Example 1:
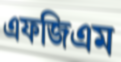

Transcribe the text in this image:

এফজিএম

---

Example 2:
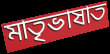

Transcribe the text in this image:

মাতৃভাষাত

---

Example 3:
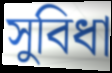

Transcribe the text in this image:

সুবিধা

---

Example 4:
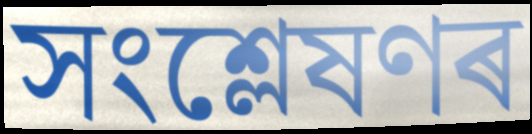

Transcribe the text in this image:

সংশ্লেষণৰ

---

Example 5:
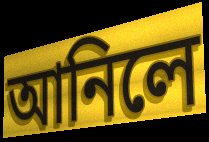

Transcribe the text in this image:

আনিলে